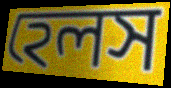
হেলস